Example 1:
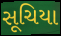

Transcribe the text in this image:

સૂચિયા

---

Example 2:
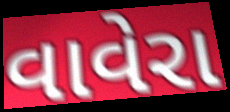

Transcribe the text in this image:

વાવેરા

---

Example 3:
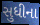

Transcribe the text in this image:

સુધીના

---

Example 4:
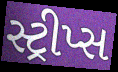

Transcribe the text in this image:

સ્ટ્રીપ્સ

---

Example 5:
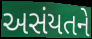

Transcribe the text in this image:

અસંયતને